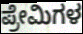
ಪ್ರೇಮಿಗಳ